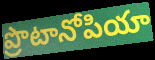
ప్రొటానోపియా